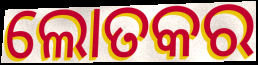
ଲୋତକର